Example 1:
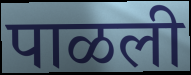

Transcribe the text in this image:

पाळली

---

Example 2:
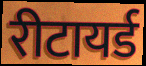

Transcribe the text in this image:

रीटायर्ड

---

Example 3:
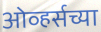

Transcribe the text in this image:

ओव्हर्सच्या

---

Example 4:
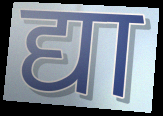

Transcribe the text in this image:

द्या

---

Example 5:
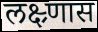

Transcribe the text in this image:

लक्ष्र्णास